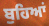
ਬੁਹਿਆਂ